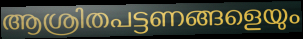
ആശ്രിതപട്ടണങ്ങളെയും